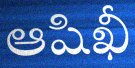
ఆషిఖీ